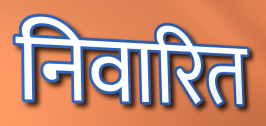
निवारित